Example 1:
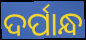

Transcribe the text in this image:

ଦର୍ପାନ୍ଧ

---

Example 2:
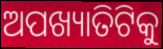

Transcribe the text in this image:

ଅପଖ୍ୟାତିଟିକୁ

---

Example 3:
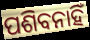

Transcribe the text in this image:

ପଶିବନାହିଁ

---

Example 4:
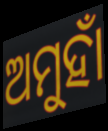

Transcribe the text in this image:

ଅମୁହାଁ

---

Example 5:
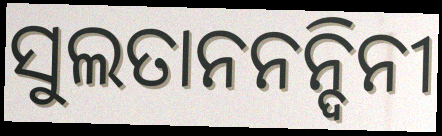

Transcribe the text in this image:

ସୁଲତାନନନ୍ଦିନୀ